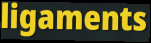
ligaments